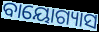
ବାୟୋଗ୍ୟାସ